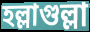
হল্লাগুল্লা